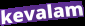
kevalam